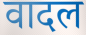
वादल